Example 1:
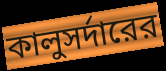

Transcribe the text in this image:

কালুসর্দারের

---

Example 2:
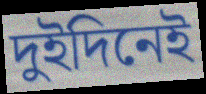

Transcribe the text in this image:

দুইদিনেই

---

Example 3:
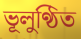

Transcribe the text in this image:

ভূলুণ্ঠিত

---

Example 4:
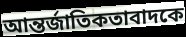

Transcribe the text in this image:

আন্তর্জাতিকতাবাদকে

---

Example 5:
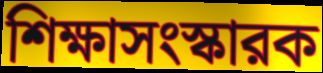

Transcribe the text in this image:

শিক্ষাসংস্কারক